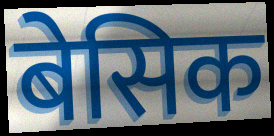
बेसिक